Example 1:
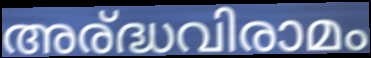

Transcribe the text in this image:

അര്ദ്ധവിരാമം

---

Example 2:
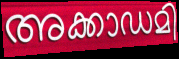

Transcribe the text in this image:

അക്കാഡമി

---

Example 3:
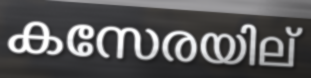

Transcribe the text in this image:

കസേരയില്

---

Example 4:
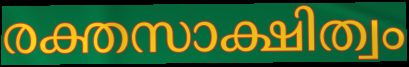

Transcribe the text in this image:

രക്തസാക്ഷിത്വം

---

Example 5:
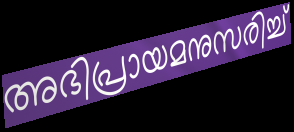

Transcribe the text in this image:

അഭിപ്രായമനുസരിച്ച്